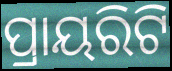
ପ୍ରାୟରିଟି